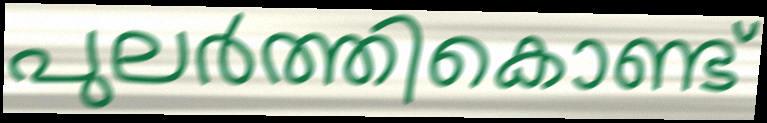
പുലർത്തികൊണ്ട്